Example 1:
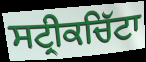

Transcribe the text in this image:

ਸਟ੍ਰੀਕਚਿੱਟਾ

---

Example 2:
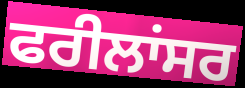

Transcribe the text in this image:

ਫਰੀਲਾਂਸਰ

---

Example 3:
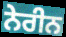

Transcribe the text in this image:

ਨੇਰੀਨ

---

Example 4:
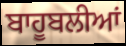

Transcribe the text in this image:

ਬਾਹੂਬਲੀਆਂ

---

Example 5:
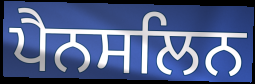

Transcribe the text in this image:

ਪੈਨਸਲਿਨ